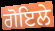
ਗੋਇਲੇ